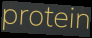
protein